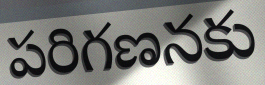
పరిగణనకు